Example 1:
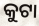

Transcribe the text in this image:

କୁଟା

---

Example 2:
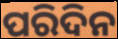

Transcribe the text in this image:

ପରିଦିନ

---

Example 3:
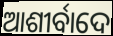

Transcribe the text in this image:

ଆଶୀର୍ବାଦେ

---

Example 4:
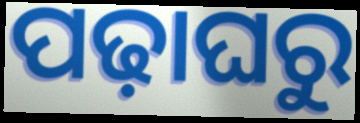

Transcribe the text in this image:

ପଢ଼ାଘରୁ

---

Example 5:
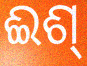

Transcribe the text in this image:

ଈଶ୍